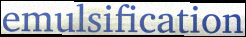
emulsification